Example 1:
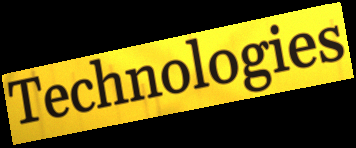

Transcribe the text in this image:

Technologies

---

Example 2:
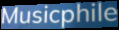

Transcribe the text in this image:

Musicphile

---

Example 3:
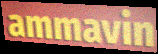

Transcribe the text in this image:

ammavin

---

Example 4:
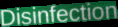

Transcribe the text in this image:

Disinfection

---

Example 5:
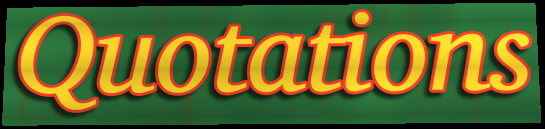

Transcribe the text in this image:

Quotations